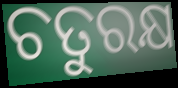
ଚତୁରକ୍ଷ